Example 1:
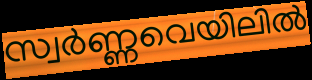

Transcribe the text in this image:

സ്വർണ്ണവെയിലിൽ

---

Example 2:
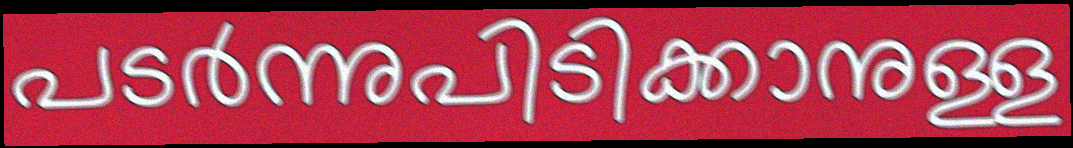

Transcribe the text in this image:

പടർന്നുപിടിക്കാനുള്ള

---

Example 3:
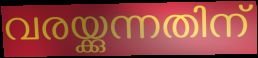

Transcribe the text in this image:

വരയ്ക്കുന്നതിന്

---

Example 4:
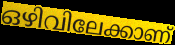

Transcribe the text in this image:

ഒഴിവിലേക്കാണ്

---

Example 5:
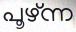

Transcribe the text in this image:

പൂഴ്ന്ന